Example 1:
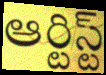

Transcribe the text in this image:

ఆర్టిస్ట్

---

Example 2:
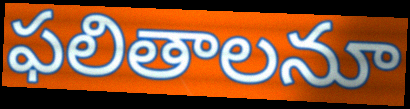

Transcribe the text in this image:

ఫలితాలనూ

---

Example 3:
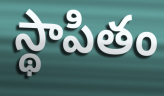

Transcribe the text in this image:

స్థాపితం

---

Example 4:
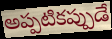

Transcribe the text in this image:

అప్పటికప్పుడే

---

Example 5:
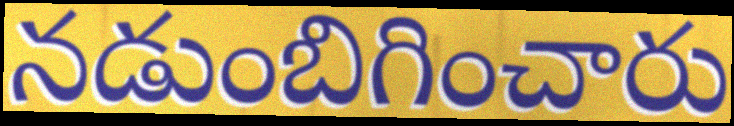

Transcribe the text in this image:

నడుంబిగించారు